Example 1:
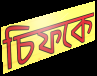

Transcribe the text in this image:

চিফকে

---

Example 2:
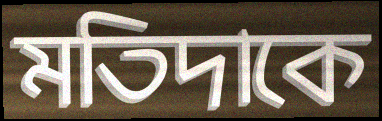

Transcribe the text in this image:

মতিদাকে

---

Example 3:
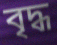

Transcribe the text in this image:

বৃদ্ধ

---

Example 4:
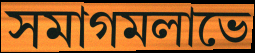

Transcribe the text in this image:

সমাগমলাভে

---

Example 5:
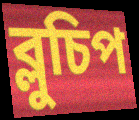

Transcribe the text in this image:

ব্লুচিপ